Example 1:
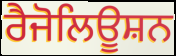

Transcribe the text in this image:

ਰੈਜੋਲਿਊਸ਼ਨ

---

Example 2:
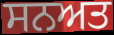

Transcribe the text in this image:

ਸਨਅਤ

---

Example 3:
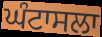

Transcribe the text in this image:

ਘੰਟਾਸਲਾ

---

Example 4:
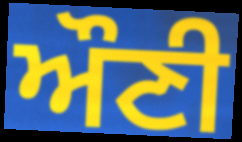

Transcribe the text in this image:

ਔਣੀ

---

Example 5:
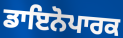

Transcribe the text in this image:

ਡਾਇਨੋਪਾਰਕ